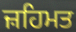
ਜ਼ਹਿਮਤ